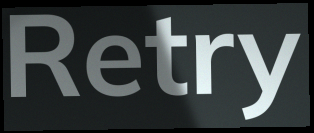
Retry